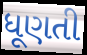
ધૂણતી